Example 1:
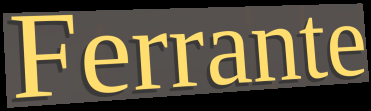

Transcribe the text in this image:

Ferrante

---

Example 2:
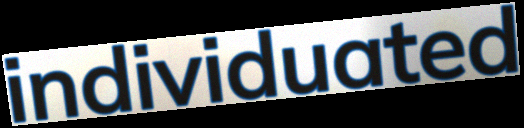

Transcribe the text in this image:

individuated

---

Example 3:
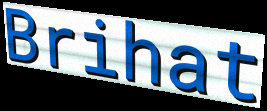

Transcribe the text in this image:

Brihat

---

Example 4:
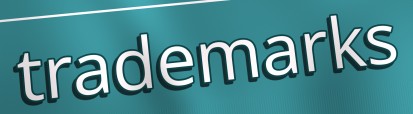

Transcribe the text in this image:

trademarks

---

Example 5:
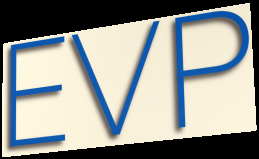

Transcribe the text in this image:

EVP